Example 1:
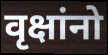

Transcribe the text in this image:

वृक्षांनो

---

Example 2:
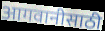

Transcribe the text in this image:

आगवानीसाठी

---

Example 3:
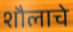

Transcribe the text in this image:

शौलाचे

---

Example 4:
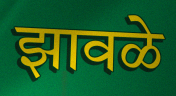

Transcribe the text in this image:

झावळे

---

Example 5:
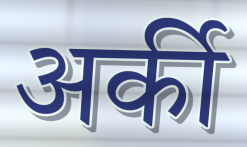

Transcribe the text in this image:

अर्की